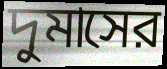
দুমাসের